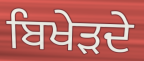
ਬਿਖੇੜਦੇ